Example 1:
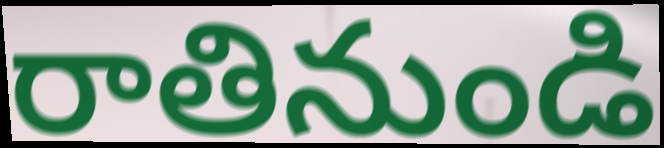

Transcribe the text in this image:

రాతినుండి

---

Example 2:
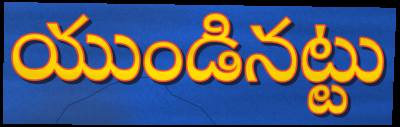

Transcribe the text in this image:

యుండినట్టు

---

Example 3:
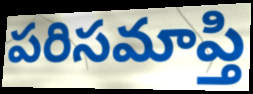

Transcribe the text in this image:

పరిసమాప్తి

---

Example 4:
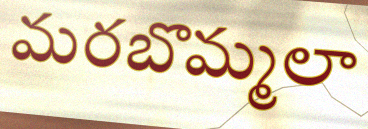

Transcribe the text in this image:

మరబొమ్మలా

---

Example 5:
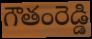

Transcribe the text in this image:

గౌతంరెడ్డి